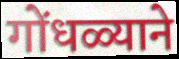
गोंधळ्याने